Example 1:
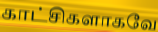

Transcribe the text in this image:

காட்சிகளாகவே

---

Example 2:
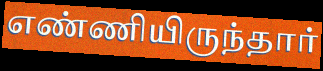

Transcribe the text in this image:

எண்ணியிருந்தார்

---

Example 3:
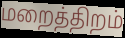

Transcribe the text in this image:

மறைத்திறம்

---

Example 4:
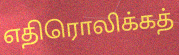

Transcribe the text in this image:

எதிரொலிக்கத்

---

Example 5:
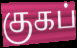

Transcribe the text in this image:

குகப்